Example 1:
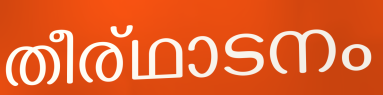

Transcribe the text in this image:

തീര്ഥാടനം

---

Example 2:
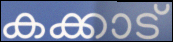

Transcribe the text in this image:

കക്കാട്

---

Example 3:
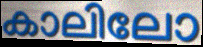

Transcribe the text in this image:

കാലിലോ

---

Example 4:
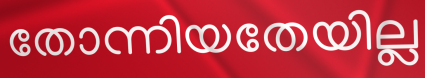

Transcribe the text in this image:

തോന്നിയതേയില്ല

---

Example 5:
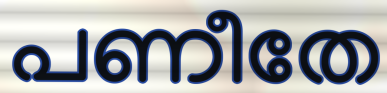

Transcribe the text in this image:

പണീതേ